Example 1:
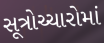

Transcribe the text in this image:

સૂત્રોચ્ચારોમાં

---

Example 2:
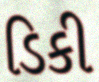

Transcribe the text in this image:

ડિકી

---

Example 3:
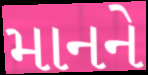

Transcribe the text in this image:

માનને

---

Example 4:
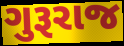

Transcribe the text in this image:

ગુરૂરાજ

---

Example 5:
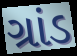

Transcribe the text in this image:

ગ્રાંડ